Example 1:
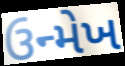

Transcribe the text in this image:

ઉન્મેખ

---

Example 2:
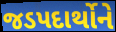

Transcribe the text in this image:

જડપદાર્થોને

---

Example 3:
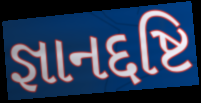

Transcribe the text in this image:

જ્ઞાનદ્દષ્ટિ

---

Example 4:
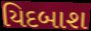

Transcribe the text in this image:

યિદબાશ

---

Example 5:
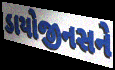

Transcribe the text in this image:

ડાયોજીનસને